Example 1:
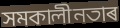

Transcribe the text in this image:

সমকালীনতাৰ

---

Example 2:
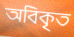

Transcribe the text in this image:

অবিকৃত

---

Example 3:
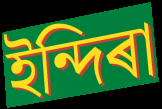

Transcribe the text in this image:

ইন্দিৰা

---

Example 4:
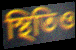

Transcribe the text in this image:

স্থিতিও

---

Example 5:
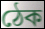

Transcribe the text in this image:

ঠেক